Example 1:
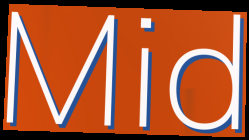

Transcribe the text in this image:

Mid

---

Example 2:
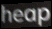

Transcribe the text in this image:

heap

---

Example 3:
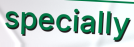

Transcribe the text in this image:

specially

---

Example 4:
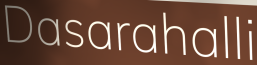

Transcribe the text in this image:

Dasarahalli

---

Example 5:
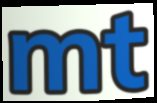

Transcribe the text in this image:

mt